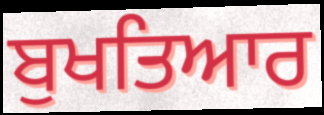
ਬੁਖਤਿਆਰ